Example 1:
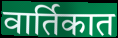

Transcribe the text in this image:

वार्तिकात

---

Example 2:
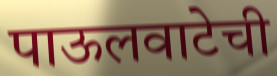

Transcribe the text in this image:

पाऊलवाटेची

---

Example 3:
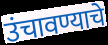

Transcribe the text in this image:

उंचावण्याचे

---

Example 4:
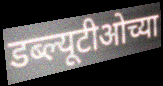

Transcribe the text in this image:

डब्ल्यूटीओच्या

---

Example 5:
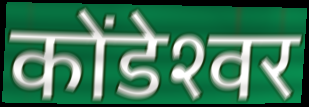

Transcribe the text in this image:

कोंडेश्वर